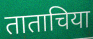
ताताचिया